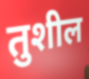
तुशील